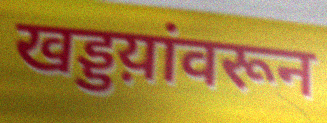
खड्डय़ांवरून